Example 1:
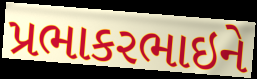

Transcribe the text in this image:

પ્રભાકરભાઇને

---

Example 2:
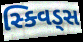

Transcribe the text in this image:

સ્ક્વિડ્સ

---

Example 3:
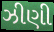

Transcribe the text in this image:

ઝીણી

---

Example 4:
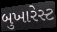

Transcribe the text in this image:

બુખારેસ્ટ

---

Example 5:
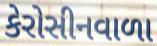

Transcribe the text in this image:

કેરોસીનવાળા